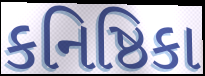
કનિષ્ઠિકા